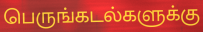
பெருங்கடல்களுக்கு